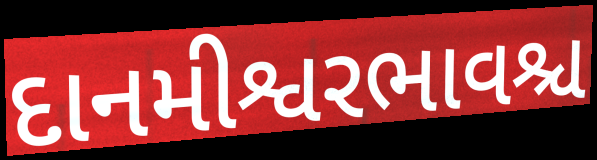
દાનમીશ્વરભાવશ્ચ